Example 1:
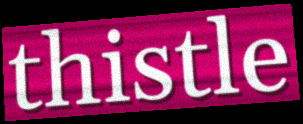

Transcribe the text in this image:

thistle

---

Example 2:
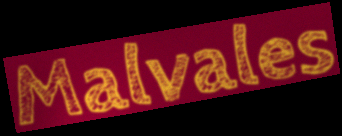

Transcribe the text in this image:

Malvales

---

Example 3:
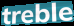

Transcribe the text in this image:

treble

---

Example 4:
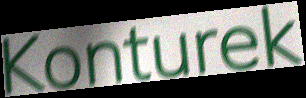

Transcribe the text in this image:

Konturek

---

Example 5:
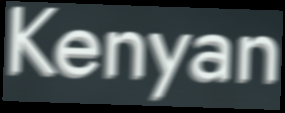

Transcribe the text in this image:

Kenyan